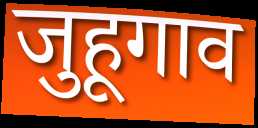
जुहूगाव